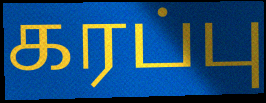
கரப்பு